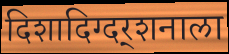
दिशादिग्दर्शनाला